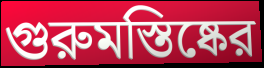
গুরুমস্তিষ্কের